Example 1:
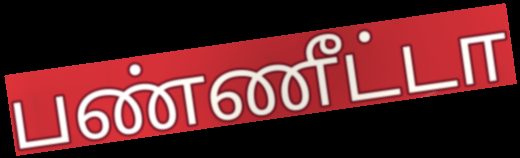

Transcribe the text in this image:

பண்ணீட்டா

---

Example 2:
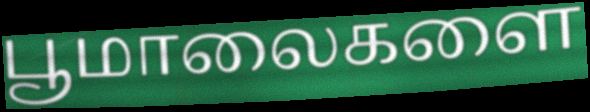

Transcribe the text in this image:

பூமாலைகளை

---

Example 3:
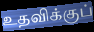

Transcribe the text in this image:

உதவிக்குப்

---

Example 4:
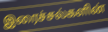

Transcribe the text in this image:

இரைச்சல்களின்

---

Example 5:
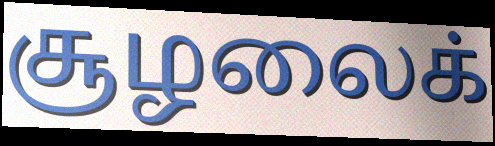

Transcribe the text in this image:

சூழலைக்